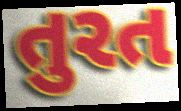
તુરત